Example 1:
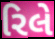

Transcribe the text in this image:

રિલે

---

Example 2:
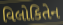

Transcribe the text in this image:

વિલોકિતેન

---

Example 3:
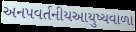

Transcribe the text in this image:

અનપવર્તનીયઆયુષ્યવાળા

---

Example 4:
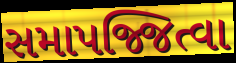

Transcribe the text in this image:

સમાપજ્જિત્વા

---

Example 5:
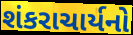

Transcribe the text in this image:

શંકરાચાર્યનો